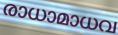
രാധാമാധവ